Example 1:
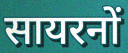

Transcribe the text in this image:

सायरनों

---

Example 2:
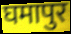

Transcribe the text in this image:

घमापुर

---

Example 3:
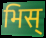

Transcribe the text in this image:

भिस्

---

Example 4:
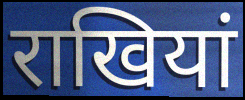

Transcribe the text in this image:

राखियां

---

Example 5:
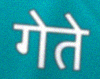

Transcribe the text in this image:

गेते